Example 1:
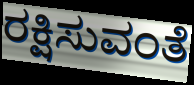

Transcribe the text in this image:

ರಕ್ಷಿಸುವಂತೆ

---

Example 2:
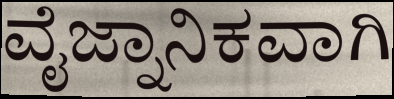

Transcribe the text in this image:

ವೈಜ್ನಾನಿಕವಾಗಿ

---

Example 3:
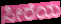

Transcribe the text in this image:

ಸೀರೆಯ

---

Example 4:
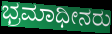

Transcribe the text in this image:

ಭ್ರಮಾಧೀನರು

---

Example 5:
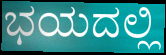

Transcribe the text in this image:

ಭಯದಲ್ಲಿ